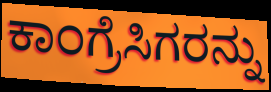
ಕಾಂಗ್ರೆಸಿಗರನ್ನು